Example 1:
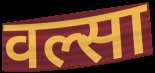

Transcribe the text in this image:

वल्सा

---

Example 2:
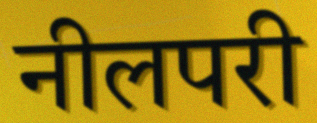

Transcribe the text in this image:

नीलपरी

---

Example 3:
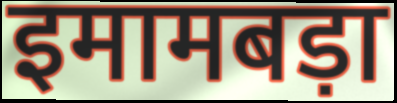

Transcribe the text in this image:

इमामबड़ा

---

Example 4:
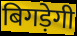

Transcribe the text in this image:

बिगड़ेगी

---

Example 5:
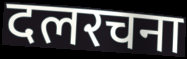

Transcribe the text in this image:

दलरचना